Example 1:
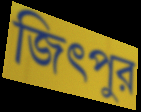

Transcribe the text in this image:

জিৎপুর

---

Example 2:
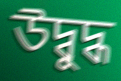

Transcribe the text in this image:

উদ্বুদ্ধ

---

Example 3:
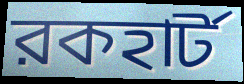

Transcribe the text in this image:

রকহার্ট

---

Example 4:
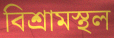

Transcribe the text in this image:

বিশ্রামস্থল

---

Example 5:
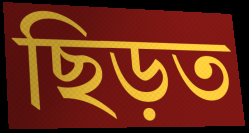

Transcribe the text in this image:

ছিড়ত